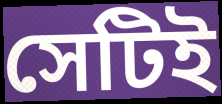
সেটিই